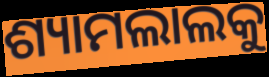
ଶ୍ୟାମଲାଲକୁ